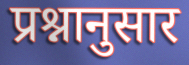
प्रश्नानुसार